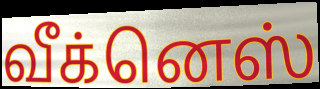
வீக்னெஸ்